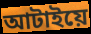
আটাইয়ে